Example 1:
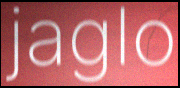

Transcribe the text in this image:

jaglo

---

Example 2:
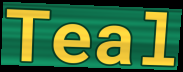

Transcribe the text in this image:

Teal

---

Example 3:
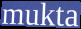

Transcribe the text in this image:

mukta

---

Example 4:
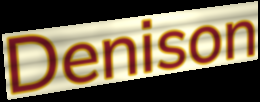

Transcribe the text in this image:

Denison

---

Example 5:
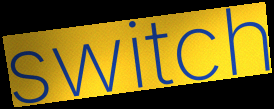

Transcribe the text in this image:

switch